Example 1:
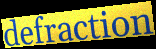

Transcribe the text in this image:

defraction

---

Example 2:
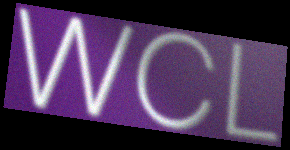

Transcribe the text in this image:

WCL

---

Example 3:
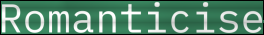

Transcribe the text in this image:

Romanticise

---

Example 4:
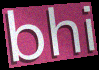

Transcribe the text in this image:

bhi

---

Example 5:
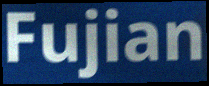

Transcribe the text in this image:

Fujian